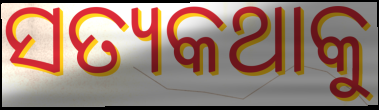
ସତ୍ୟକଥାକୁ